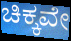
ಚಿಕ್ಕವೇ